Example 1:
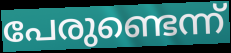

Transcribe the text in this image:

പേരുണ്ടെന്ന്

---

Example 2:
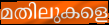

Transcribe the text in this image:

മതിലുകളെ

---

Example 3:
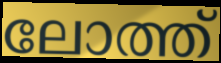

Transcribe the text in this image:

ലോത്ത്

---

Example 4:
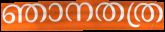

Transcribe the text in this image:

ഞാനതത്ര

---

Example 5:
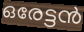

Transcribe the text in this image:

ഒരേട്ടൻ